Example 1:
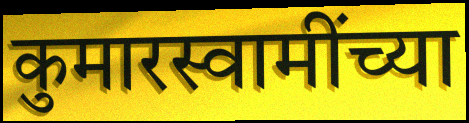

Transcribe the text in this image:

कुमारस्वामींच्या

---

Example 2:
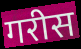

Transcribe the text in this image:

गरीस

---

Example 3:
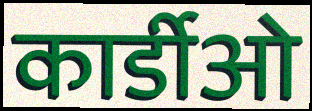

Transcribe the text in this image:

कार्डीओ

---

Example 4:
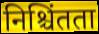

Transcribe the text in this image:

निश्चिंतता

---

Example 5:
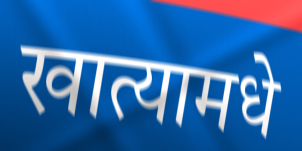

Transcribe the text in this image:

खात्यामधे